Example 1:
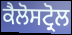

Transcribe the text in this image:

ਕੈਲੋਸਟ੍ਰੋਲ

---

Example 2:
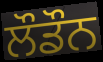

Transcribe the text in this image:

ਲੌਡੌਨ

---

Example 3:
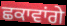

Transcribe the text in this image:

ਛਕਾਵਾਂਗੇ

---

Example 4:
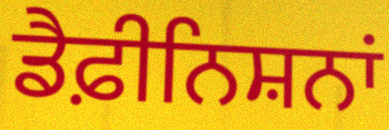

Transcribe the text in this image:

ਡੈਫ਼ੀਨਿਸ਼ਨਾਂ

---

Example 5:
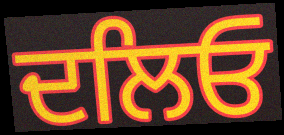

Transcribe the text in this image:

ਦਲਿਓ